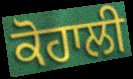
ਕੋਹਾਲੀ